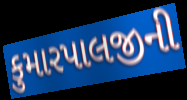
કુમારપાલજીની